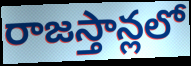
రాజస్తాన్లలో